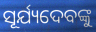
ସୂର୍ଯ୍ୟଦେବଙ୍କୁ